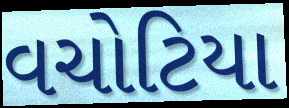
વચોટિયા